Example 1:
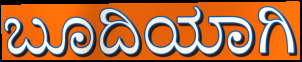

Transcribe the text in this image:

ಬೂದಿಯಾಗಿ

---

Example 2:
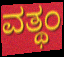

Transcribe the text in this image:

ವತ್ಥಂ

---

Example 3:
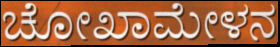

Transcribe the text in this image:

ಚೋಖಾಮೇಳನ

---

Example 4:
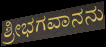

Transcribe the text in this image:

ಶ್ರೀಭಗವಾನನು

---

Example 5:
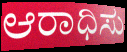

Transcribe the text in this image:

ಆರಾಧಿಸು